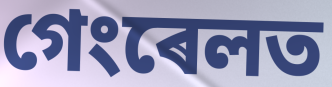
গেংৰেলত